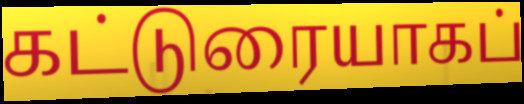
கட்டுரையாகப்